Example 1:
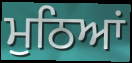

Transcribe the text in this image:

ਮੁਠਿਆਂ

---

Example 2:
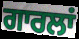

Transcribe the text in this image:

ਗਾਰਲਾਂ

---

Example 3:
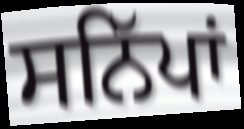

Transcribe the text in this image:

ਸਨਿੱਪਾਂ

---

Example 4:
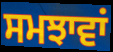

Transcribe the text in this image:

ਸਮਝਾਵਾਂ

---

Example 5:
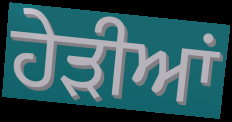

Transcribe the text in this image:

ਹੇੜੀਆਂ